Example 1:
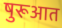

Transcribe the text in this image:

षुरूआत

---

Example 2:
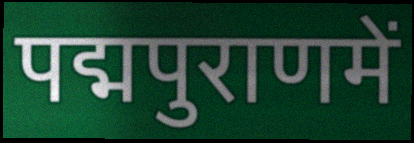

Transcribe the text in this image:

पद्मपुराणमें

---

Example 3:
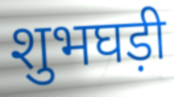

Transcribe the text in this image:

शुभघड़ी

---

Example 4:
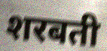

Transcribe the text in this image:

शरबती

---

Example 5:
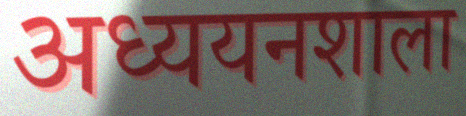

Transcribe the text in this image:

अध्ययनशाला